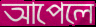
আপেলে